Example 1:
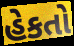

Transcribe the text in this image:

હેકતો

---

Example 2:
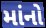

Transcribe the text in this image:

માંનો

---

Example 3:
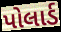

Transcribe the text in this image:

પોલાર્ડ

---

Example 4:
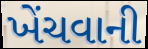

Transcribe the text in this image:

ખેંચવાની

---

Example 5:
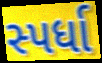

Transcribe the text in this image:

સ્પર્ધા